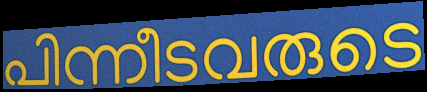
പിന്നീടവരുടെ